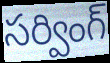
సర్వింగ్